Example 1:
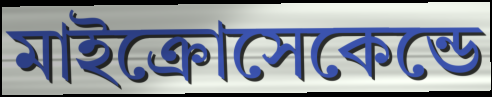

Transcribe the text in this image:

মাইক্রোসেকেন্ডে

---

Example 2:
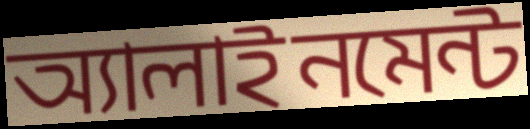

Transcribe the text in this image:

অ্যালাইনমেন্ট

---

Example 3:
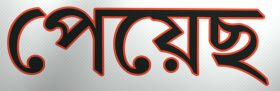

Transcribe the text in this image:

পেয়েছ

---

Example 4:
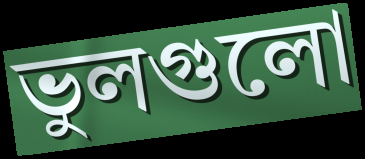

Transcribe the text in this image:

ভুলগুলো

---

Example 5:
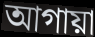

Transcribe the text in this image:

আগায়া